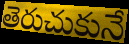
తెరుచుకునే